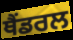
ਥੈਂਡਰਲ